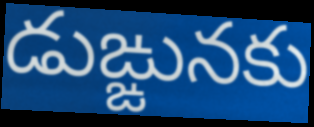
డుఙ్ఙునకు